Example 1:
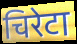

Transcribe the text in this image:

चिरेटा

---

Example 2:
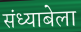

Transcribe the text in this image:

संध्याबेला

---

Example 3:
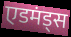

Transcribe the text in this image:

एडमंड्स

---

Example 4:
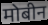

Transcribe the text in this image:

मोबीन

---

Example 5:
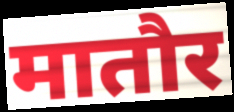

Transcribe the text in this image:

मातौर